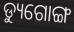
ଡ୍ୟୁଗୋଙ୍ଗ